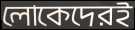
লোকেদেরই